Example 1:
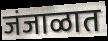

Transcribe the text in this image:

जंजाळात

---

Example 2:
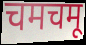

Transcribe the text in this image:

चमचमू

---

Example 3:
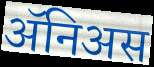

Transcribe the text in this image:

ॲनिअस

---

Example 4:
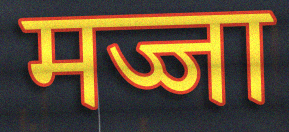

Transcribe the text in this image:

मज्जा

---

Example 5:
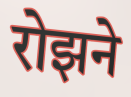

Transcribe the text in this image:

रोझने